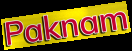
Paknam